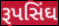
રૂપસિંઘ